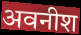
अवनीश